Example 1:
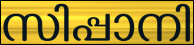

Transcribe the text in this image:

സിപ്പാനി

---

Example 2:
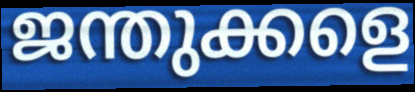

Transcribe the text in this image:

ജന്തുക്കളെ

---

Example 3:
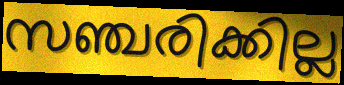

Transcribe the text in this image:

സഞ്ചരിക്കില്ല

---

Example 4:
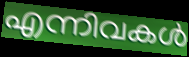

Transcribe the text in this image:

എന്നിവകൾ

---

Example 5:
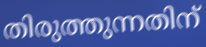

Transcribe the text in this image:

തിരുത്തുന്നതിന്